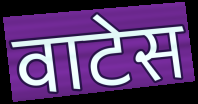
वाटेस